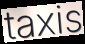
taxis